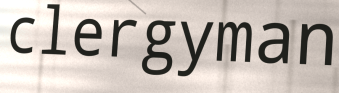
clergyman